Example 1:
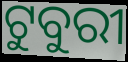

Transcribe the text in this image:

ଟୁବୁରୀ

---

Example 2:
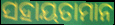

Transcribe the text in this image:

ସହାୟତାମାନ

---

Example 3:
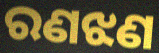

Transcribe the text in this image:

ରଣଝଣ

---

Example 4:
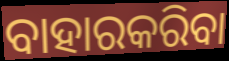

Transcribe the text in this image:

ବାହାରକରିବା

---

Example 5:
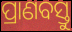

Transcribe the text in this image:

ପ୍ରାଣବସ୍ତୁ